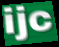
ijc